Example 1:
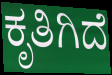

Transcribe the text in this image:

ಕೃತಿಗಿದೆ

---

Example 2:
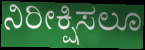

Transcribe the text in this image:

ನಿರೀಕ್ಷಿಸಲೂ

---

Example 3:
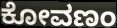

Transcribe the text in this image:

ಕೋವಣಂ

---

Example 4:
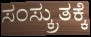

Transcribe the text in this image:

ಸಂಸ್ಕ್ರುತಕ್ಕೆ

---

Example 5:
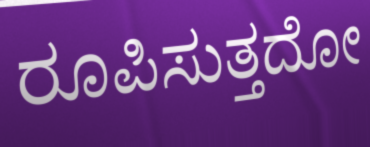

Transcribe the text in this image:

ರೂಪಿಸುತ್ತದೋ